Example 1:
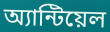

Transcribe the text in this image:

অ্যান্টিয়েল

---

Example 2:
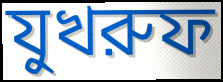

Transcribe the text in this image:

যুখরুফ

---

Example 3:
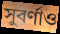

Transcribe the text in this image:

সুবর্ণাও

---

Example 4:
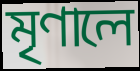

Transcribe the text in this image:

মৃণালে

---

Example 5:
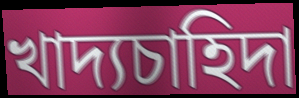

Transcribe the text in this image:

খাদ্যচাহিদা